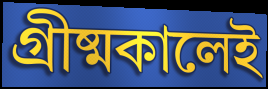
গ্রীষ্মকালেই